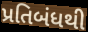
પ્રતિબંધથી